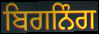
ਬਿਗਨਿੰਗ